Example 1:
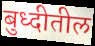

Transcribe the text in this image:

बुध्दीतील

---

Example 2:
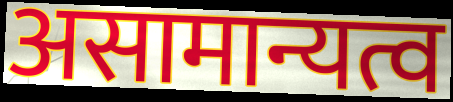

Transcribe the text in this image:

असामान्यत्व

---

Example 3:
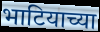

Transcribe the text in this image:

भाटियाच्या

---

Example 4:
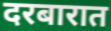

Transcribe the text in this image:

दरबारात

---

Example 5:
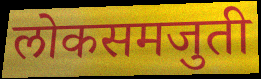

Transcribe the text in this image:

लोकसमजुती